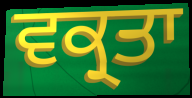
ਵਕ੍ਰਤਾ